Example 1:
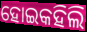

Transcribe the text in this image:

ହୋଇକହିଲି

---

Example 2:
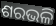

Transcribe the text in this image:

ଶରଭଳି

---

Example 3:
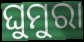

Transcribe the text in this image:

ଘୁମୁରା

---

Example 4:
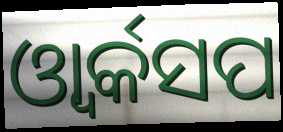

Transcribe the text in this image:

ଓ୍ୱାର୍କସପ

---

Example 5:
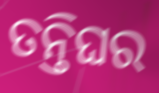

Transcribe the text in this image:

ତନ୍ତିଘର